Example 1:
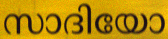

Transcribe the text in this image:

സാദിയോ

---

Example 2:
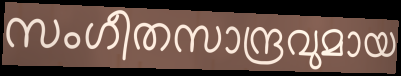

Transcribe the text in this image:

സംഗീതസാന്ദ്രവുമായ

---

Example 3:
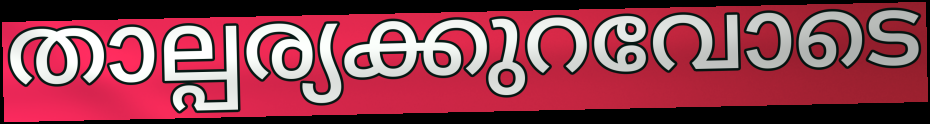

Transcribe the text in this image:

താല്പര്യക്കുറവോടെ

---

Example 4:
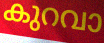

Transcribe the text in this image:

കുറവാ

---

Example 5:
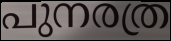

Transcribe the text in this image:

പുനരത്ര